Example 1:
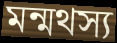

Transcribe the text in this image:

মন্মথস্য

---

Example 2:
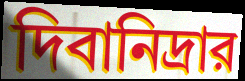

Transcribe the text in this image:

দিবানিদ্রার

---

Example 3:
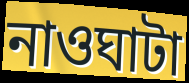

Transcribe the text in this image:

নাওঘাটা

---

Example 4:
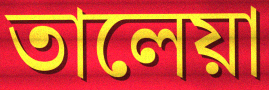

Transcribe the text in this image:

তালেয়া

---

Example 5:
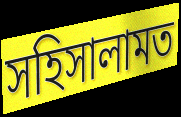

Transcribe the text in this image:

সহিসালামত